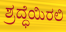
ಶ್ರದ್ಧೆಯಿರಲಿ